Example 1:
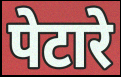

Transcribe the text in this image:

पेटारे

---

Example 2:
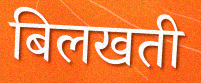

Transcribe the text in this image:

बिलखती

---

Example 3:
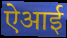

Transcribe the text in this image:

ऐआई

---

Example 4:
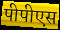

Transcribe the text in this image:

पीपीएस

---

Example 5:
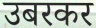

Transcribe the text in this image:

उबरकर